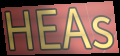
HEAs